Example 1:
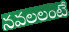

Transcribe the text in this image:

నవలలంటే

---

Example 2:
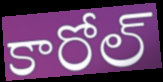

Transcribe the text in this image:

కారోల్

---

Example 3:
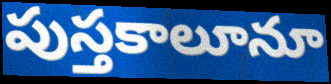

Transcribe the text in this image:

పుస్తకాలూనూ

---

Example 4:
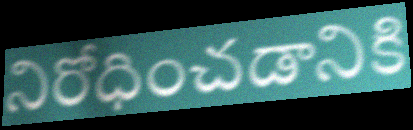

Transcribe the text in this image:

నిరోధించడానికి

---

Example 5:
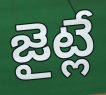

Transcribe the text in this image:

జైట్లే